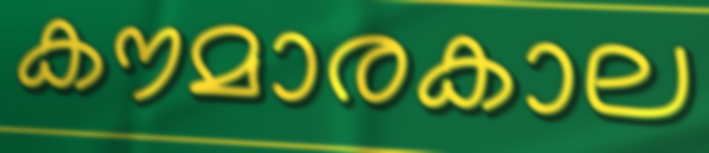
കൗമാരകാല